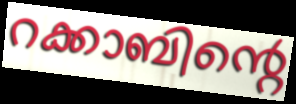
റക്കാബിന്റെ